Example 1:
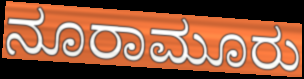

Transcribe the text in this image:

ನೂರಾಮೂರು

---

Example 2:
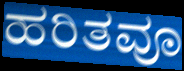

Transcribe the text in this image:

ಹರಿತವೂ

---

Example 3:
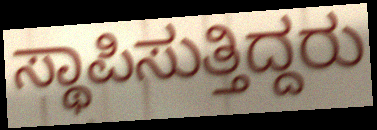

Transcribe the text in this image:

ಸ್ಥಾಪಿಸುತ್ತಿದ್ದರು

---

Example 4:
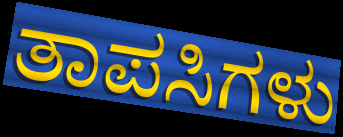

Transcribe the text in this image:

ತಾಪಸಿಗಳು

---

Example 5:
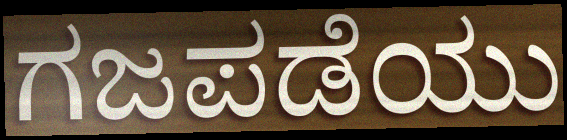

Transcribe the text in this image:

ಗಜಪಡೆಯು